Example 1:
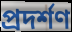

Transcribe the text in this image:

প্ৰদৰ্শণ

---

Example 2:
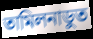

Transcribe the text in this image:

তামিলনাডুত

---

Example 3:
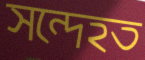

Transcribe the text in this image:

সন্দেহত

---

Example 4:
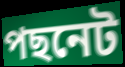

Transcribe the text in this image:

পছনেট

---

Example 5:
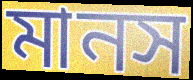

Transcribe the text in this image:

মানস